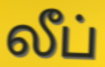
லீப்